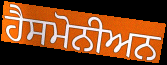
ਹੈਸਮੋਨੀਅਨ